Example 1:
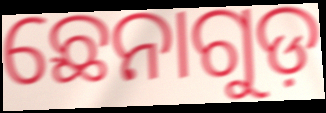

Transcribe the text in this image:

ଛେନାଗୁଡ଼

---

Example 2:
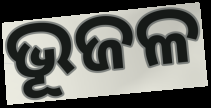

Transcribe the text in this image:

ଭୂଜଳ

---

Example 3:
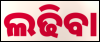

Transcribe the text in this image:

ଲଢିବା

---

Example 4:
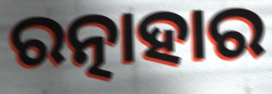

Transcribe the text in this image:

ରତ୍ନାହାର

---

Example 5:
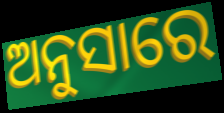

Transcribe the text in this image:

ଅନୁସାରେ